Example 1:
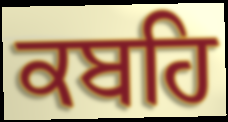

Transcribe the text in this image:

ਕਬਹਿ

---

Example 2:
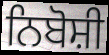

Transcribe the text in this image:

ਨਿਬੋਸ਼ੀ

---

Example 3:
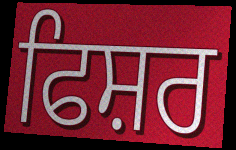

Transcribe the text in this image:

ਫਿਸ਼ਰ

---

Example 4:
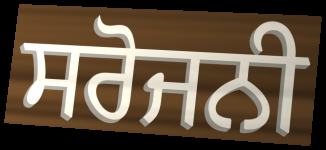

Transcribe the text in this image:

ਸਰੋਜਨੀ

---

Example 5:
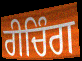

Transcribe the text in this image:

ਰੀਚਿੰਗ